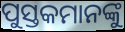
ପୁସ୍ତକମାନଙ୍କୁ